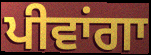
ਪੀਵਾਂਗਾ